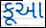
કૂઆ